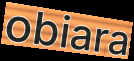
obiara